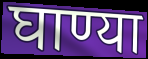
घाण्या